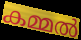
കമ്മൽ